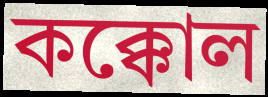
কক্কোল